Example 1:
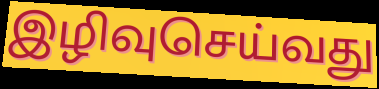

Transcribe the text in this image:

இழிவுசெய்வது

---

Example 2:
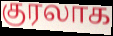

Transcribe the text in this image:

குரலாக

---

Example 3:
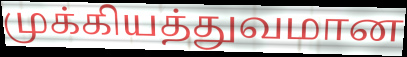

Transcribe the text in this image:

முக்கியத்துவமான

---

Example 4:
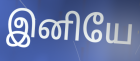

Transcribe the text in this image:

இனியே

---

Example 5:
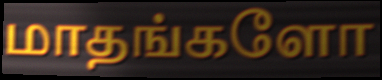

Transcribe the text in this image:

மாதங்களோ